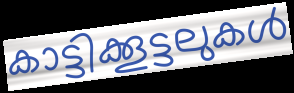
കാട്ടിക്കൂട്ടലുകൾ